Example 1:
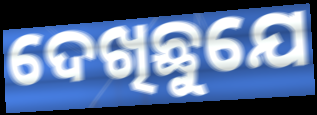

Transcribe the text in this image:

ଦେଖିଛୁଯେ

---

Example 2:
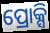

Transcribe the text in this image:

ପ୍ରୋକ୍ସି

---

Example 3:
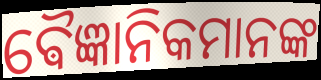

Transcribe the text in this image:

ଵୈଜ୍ଞାନିକମାନଙ୍କ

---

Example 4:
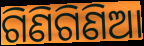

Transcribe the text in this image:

ଗିଣିଗିଣିଆ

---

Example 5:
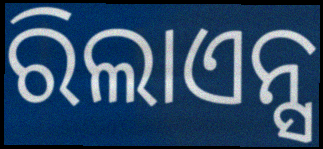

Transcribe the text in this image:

ରିଲାଏନ୍ସ